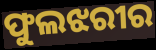
ଫୁଲଝରୀର